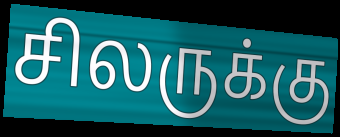
சிலருக்கு